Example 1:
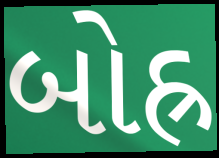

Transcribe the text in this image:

બોહ્ર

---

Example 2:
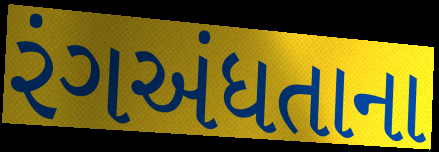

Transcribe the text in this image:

રંગઅંધતાના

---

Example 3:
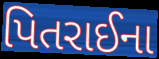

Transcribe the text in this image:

પિતરાઈના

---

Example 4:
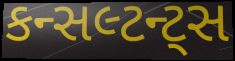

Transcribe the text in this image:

કન્સલ્ટન્ટ્સ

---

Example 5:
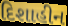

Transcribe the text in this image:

દિશાહીન